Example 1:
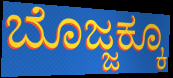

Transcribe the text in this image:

ಬೊಜ್ಜಕ್ಕೂ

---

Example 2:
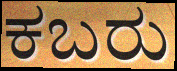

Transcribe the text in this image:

ಕಬರು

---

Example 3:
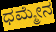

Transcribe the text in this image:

ಧಮ್ಮೇನ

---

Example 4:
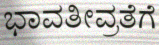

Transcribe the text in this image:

ಭಾವತೀವ್ರತೆಗೆ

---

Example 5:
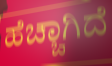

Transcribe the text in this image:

ಹೆಚ್ಚಾಗಿದೆ